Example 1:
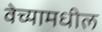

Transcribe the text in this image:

वेच्यामधील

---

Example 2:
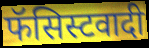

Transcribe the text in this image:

फॅसिस्टवादी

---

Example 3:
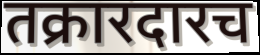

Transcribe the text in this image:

तक्रारदारच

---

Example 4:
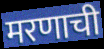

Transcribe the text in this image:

मरणाची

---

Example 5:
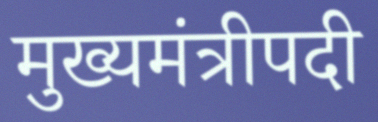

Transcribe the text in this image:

मुख्यमंत्रीपदी